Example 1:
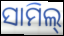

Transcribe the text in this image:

ସାମିଲ୍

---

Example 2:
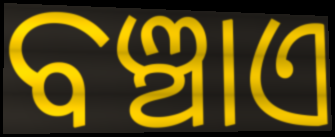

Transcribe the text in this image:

ବଞ୍ଚାଏ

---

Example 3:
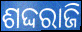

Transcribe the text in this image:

ଶଦ୍ଦରାଜି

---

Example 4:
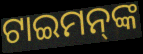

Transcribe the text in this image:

ଟାଇମନ୍‌ଙ୍କ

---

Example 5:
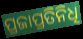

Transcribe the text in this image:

ପ୍ରଜାପ୍ରତିନିଧି